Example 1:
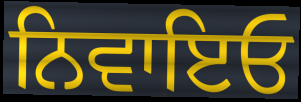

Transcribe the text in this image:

ਨਿਵਾਇਓ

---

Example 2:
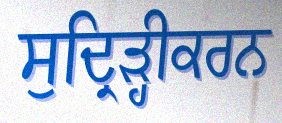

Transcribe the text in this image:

ਸੁਦ੍ਰਿੜ੍ਹੀਕਰਨ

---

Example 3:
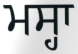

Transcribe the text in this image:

ਮਸ੍ਹਾ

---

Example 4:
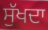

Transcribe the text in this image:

ਸੁੱਖਦਾ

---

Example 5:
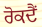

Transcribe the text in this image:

ਰੋਕਦੈਂ